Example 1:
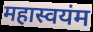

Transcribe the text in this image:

महास्वयंम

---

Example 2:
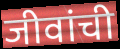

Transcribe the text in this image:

जीवांची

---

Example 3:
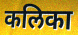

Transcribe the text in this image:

कलिका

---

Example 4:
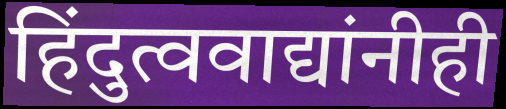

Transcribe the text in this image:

हिंदुत्ववाद्यांनीही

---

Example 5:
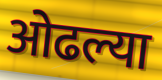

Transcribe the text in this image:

ओढल्या